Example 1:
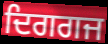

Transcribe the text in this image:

ਦਿਗਗਜ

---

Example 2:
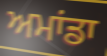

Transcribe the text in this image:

ਅਮਾਂਡਾ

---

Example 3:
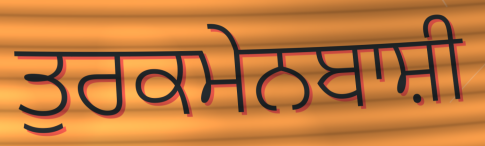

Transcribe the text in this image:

ਤੁਰਕਮੇਨਬਾਸ਼ੀ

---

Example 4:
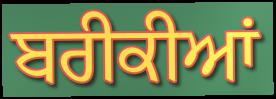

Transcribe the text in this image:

ਬਰੀਕੀਆਂ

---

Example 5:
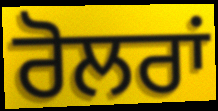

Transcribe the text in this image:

ਰੋਲਰਾਂ